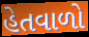
હેતવાળો